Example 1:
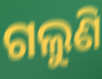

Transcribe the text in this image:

ଗଲୁଣି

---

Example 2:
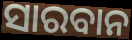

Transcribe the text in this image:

ସାରବାନ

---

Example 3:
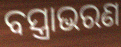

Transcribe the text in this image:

ବସ୍ତ୍ରାଭରଣ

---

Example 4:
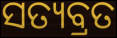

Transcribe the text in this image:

ସତ୍ୟବ୍ରତ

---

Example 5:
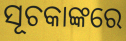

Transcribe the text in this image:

ସୂଚକାଙ୍କରେ